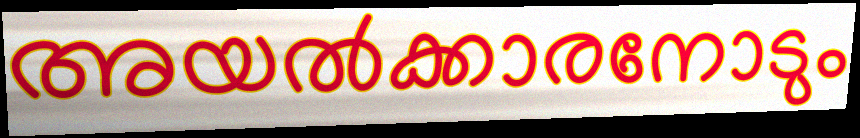
അയൽക്കാരനോടും